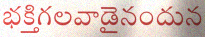
భక్తిగలవాడైనందున